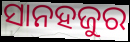
ସାନହଜୁର